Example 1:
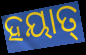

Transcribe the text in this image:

ହୟାତ୍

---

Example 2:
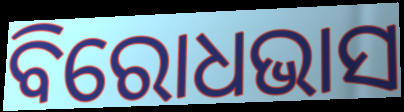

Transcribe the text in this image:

ବିରୋଧଭାସ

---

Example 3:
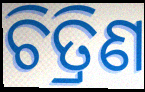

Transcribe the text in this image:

ଚିତ୍ରିଣ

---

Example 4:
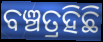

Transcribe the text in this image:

ବଞ୍ଚତ୍ରହିଛି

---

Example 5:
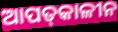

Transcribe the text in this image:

ଆପତ୍‌କାଳୀନ